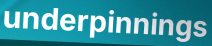
underpinnings